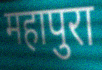
महापुरा